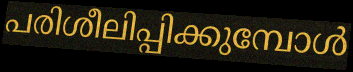
പരിശീലിപ്പിക്കുമ്പോൾ